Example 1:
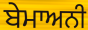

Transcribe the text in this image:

ਬੇਮਾਅਨੀ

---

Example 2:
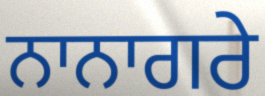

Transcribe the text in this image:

ਨਾਨਾਗਰੇ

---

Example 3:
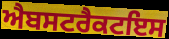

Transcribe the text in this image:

ਐਬਸਟਰੈਕਟਇਸ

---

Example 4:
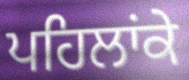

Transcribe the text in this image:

ਪਹਿਲਾਂਕੇ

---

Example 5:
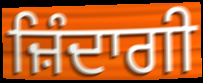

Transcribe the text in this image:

ਜ਼ਿੰਦਾਗੀ